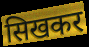
सिखकर